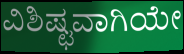
ವಿಶಿಷ್ಟವಾಗಿಯೇ